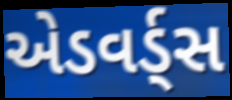
એડવર્ડ્સ